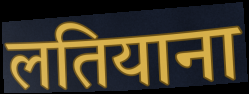
लतियाना